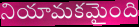
నియామకమైంది